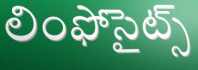
లింఫోసైట్స్